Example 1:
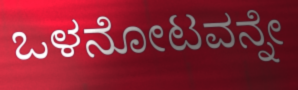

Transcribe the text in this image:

ಒಳನೋಟವನ್ನೇ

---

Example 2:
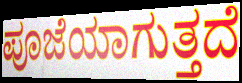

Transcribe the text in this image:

ಪೂಜೆಯಾಗುತ್ತದೆ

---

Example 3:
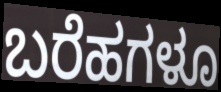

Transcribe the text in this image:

ಬರೆಹಗಳೂ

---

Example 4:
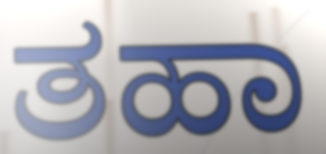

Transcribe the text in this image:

ತಹಾ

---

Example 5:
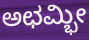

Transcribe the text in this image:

ಅಛಮ್ಭೀ